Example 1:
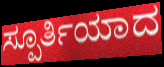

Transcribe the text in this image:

ಸ್ಪೂರ್ತಿಯಾದ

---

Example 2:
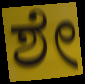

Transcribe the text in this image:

ಶೇ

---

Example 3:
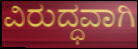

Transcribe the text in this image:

ವಿರುದ್ಧವಾಗಿ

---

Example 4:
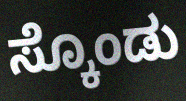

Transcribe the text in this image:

ಸ್ಕೊಂಡು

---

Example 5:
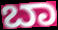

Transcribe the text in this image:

ಬಾ